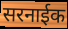
सरनाईक